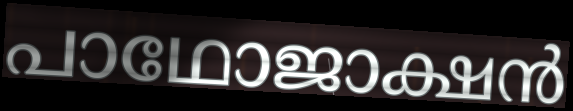
പാഥോജാക്ഷൻ